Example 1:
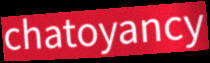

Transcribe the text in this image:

chatoyancy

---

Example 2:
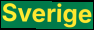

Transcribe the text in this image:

Sverige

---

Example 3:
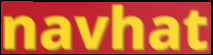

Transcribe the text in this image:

navhat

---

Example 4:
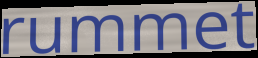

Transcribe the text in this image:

rummet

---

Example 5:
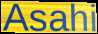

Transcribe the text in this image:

Asahi